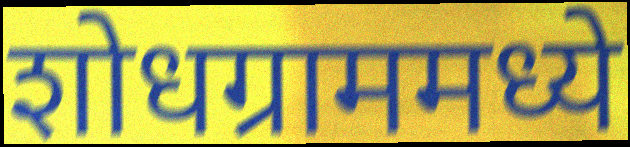
शोधग्राममध्ये